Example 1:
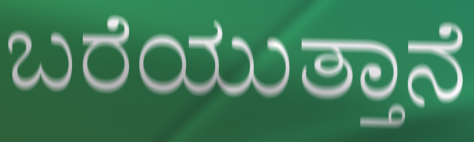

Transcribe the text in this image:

ಬರೆಯುತ್ತಾನೆ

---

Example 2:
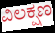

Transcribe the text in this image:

ವಿಲಕ್ಷಣ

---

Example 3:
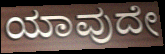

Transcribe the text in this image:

ಯಾವುದೇ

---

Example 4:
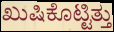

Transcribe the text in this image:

ಖುಷಿಕೊಟ್ಟಿತ್ತು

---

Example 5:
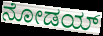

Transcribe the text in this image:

ನೋಡಯ್